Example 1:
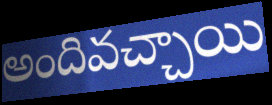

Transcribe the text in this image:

అందివచ్చాయి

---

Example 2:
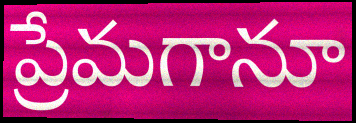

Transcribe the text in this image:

ప్రేమగానూ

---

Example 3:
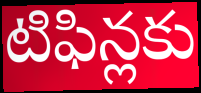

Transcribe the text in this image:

టిఫిన్లకు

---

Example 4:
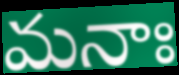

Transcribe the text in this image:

మనాః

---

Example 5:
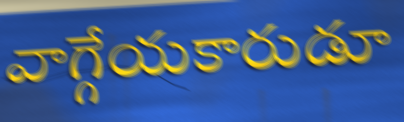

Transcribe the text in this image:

వాగ్గేయకారుడూ